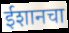
ईशानचा